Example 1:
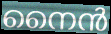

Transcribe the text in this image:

നൈൻ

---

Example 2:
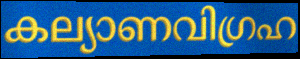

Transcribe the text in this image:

കല്യാണവിഗ്രഹ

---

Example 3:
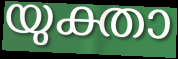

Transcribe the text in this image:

യുക്താ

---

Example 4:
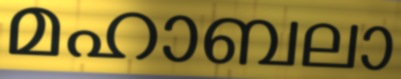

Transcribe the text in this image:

മഹാബലാ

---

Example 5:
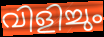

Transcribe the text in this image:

വിളിച്ചും